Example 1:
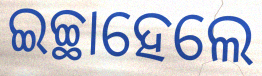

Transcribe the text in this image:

ଇଚ୍ଛାହେଲେ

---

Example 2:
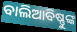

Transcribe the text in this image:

ବାଲିଆବିଷ୍ଣୁଙ୍କ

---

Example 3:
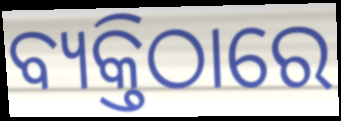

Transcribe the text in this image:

ବ୍ୟକ୍ତିଠାରେ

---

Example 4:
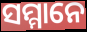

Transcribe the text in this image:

ସମ୍ମାନେ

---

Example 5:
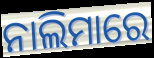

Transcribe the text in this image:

ନାଲିମାରେ